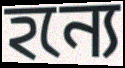
হন্যে